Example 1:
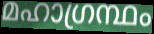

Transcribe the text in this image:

മഹാഗ്രന്ഥം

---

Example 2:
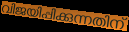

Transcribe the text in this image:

വിജയിപ്പിക്കുന്നതിന്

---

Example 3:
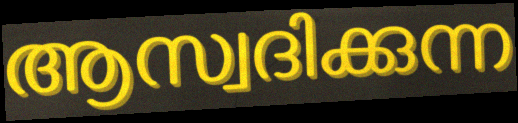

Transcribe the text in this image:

ആസ്വദിക്കുന്ന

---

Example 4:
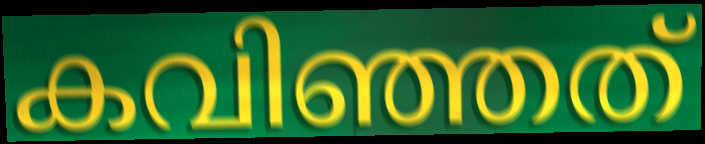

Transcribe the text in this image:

കവിഞ്ഞത്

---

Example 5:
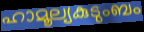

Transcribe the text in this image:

ഹാമൂല്യകുടുംബം